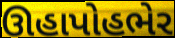
ઊહાપોહભેર